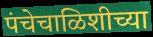
पंचेचाळिशीच्या